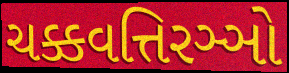
ચક્કવત્તિરઞ્ઞો